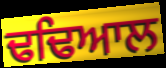
ਢਢਿਆਲ